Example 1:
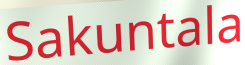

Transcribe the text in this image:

Sakuntala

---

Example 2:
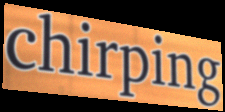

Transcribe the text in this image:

chirping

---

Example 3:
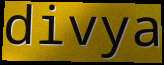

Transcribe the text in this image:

divya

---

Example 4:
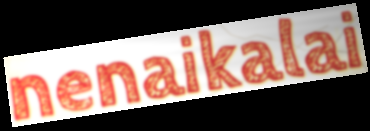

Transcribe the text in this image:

nenaikalai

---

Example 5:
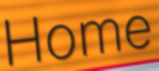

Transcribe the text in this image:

Home